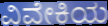
ವಿವೇಕಿಯ